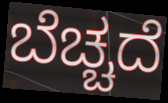
ಬೆಚ್ಚದೆ